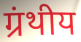
ग्रंथीय